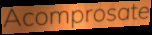
Acomprosate